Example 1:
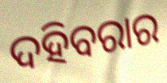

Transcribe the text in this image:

ଦହିବରାର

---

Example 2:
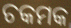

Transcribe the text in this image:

ଚକମକ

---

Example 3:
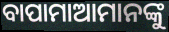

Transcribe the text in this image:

ବାପାମାଆମାନଙ୍କୁ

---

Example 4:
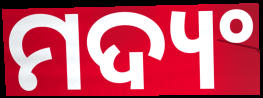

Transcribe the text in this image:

ମଦ୍ୟଂ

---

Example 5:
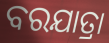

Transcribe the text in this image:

ବରଯାତ୍ରା